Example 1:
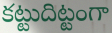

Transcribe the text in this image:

కట్టుదిట్టంగా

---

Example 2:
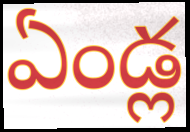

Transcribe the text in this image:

ఏండ్ల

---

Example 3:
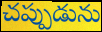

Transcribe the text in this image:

చప్పుడును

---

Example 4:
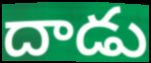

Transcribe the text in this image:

దాడు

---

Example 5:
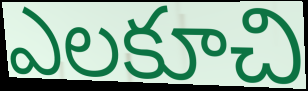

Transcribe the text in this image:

ఎలకూచి